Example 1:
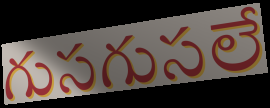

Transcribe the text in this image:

గుసగుసలే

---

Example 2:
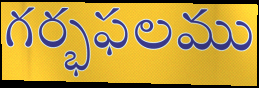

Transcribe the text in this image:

గర్భఫలము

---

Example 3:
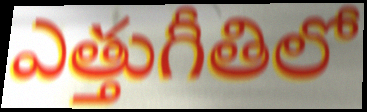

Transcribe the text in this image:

ఎత్తుగీతిలో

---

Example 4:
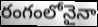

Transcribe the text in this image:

రంగంలోనైనా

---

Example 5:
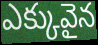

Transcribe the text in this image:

ఎక్కువైన